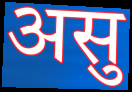
असु